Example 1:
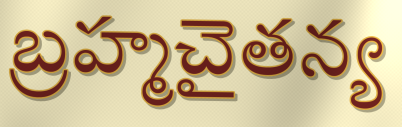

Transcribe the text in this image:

బ్రహ్మచైతన్య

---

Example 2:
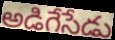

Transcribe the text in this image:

అడిగేసేడు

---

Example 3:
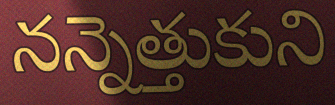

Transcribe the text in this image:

నన్నెత్తుకుని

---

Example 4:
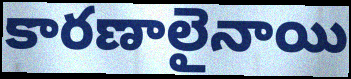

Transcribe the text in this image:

కారణాలైనాయి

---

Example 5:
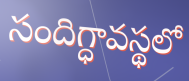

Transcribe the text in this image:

సందిగ్ధావస్థలో